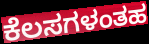
ಕೆಲಸಗಳಂತಹ